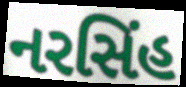
નરસિંહ